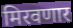
मिरवणार